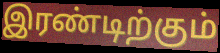
இரண்டிற்கும்